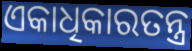
ଏକାଧିକାରତନ୍ତ୍ର